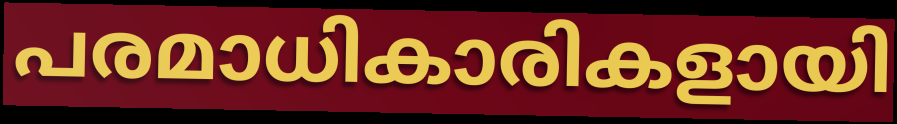
പരമാധികാരികളായി